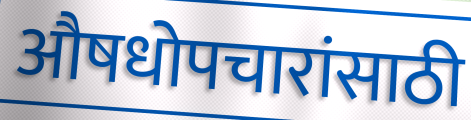
औषधोपचारांसाठी